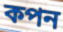
কপন